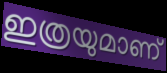
ഇത്രയുമാണ്